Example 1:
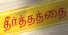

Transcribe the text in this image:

தீர்த்தத்தை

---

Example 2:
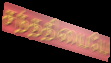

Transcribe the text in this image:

சந்ததியையே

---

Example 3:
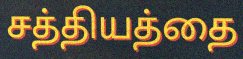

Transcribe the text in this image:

சத்தியத்தை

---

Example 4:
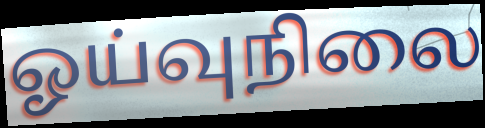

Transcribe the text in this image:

ஓய்வுநிலை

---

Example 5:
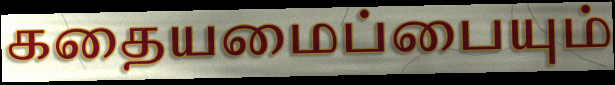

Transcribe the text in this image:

கதையமைப்பையும்